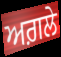
ਅਗ਼ਲੇ